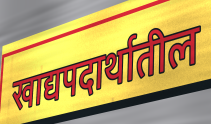
खाद्यपदार्थातील